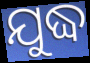
ଯୁଦ୍ଧ